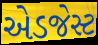
એડજેસ્ટ